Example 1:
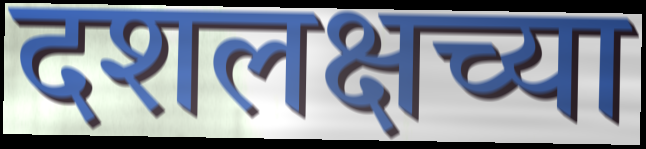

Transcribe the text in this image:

दशलक्षच्या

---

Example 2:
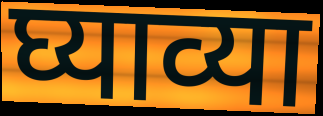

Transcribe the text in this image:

घ्याव्या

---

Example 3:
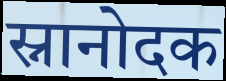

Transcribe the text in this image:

स्नानोदक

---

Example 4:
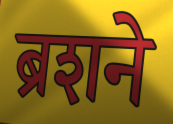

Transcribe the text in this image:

ब्रशने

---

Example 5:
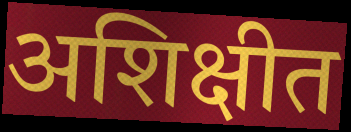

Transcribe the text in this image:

अशिक्षीत